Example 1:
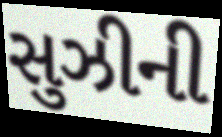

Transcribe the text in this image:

સુઝીની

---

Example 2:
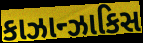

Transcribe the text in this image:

કાઝાન્ઝાકિસ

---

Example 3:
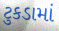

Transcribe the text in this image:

ટુકડામાં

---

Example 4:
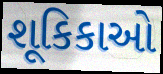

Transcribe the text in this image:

શૂકિકાઓ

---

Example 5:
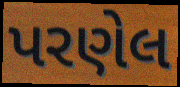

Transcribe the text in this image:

પરણેલ